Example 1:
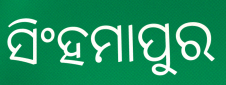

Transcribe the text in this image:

ସିଂହମାପୁର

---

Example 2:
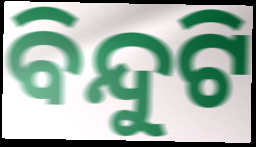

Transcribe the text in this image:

ବିନ୍ଦୁଟି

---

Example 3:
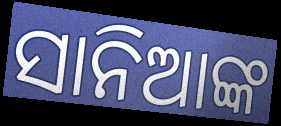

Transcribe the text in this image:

ସାନିଆଙ୍କ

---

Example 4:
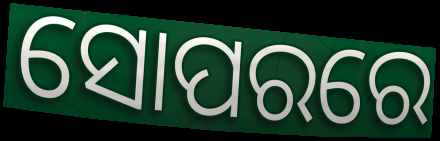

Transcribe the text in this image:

ସୋପରରେ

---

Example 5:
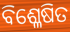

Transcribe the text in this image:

ବିଶ୍ଳେଷିତ